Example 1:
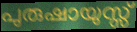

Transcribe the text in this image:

പുരുഷായുസ്സ്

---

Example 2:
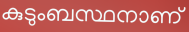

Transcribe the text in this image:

കുടുംബസ്ഥനാണ്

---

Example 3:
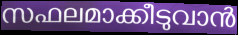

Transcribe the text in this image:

സഫലമാക്കീടുവാൻ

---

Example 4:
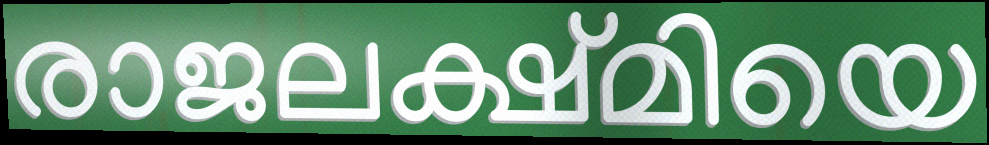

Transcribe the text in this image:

രാജലക്ഷ്മിയെ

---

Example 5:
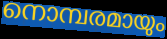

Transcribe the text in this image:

നൊമ്പരമായും